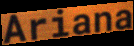
Ariana